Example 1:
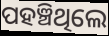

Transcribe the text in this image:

ପହଞ୍ଚିଥିଲେ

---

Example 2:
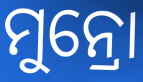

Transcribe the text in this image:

ମୁନ୍ରୋ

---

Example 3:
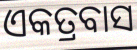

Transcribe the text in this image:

ଏକତ୍ରବାସ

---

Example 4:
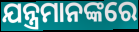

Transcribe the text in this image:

ଯନ୍ତ୍ରମାନଙ୍କରେ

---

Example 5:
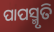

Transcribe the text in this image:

ପାପସ୍ମୃତି